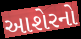
આશેરનો